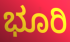
ಭೂರಿ